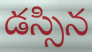
డస్సిన